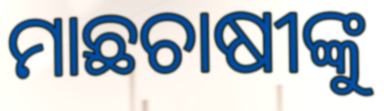
ମାଛଚାଷୀଙ୍କୁ